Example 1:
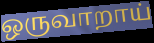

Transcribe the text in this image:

ஒருவாறாய்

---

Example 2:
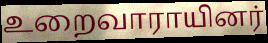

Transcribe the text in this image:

உறைவாராயினர்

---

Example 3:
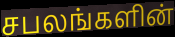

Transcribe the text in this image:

சபலங்களின்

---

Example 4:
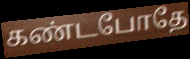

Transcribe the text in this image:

கண்டபோதே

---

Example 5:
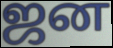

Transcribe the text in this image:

ஜன